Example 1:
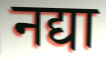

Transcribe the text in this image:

नद्या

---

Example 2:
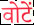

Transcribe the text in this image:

वोटें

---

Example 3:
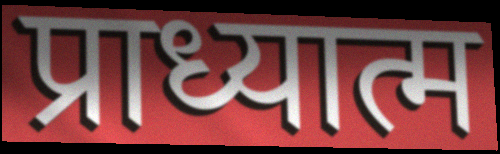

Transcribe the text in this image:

प्राध्यात्म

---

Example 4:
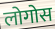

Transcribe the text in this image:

लोगोस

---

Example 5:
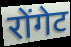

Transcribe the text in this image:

रोंगेट